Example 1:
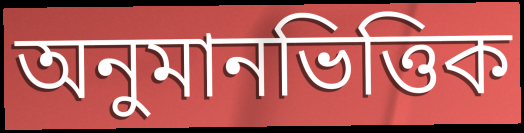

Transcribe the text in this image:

অনুমানভিত্তিক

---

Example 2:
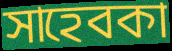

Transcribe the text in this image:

সাহেবকা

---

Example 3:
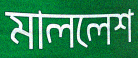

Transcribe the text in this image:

মাললেশ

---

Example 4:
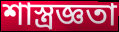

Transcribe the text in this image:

শাস্ত্রজ্ঞতা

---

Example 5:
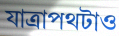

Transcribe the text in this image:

যাত্রাপথটাও